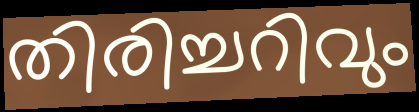
തിരിച്ചറിവും